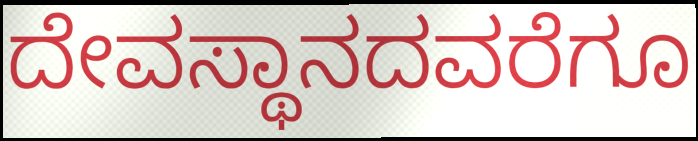
ದೇವಸ್ಥಾನದವರೆಗೂ